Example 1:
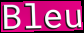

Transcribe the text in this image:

Bleu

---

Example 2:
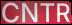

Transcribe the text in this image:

CNTR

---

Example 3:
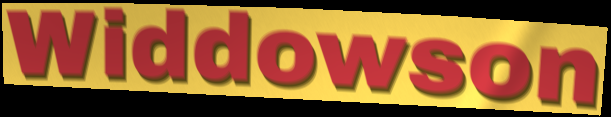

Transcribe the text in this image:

Widdowson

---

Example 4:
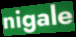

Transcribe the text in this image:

nigale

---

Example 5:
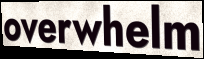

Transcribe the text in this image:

overwhelm